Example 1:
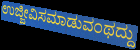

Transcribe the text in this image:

ಉಜ್ಜೀವಿಸಮಾಡುವಂಥದ್ದು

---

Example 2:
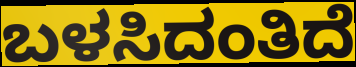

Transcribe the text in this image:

ಬಳಸಿದಂತಿದೆ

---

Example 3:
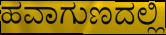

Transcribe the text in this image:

ಹವಾಗುಣದಲ್ಲಿ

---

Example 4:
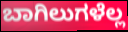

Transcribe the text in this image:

ಬಾಗಿಲುಗಳೆಲ್ಲ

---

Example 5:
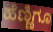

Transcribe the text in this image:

ಹೆಣ್ಣಿಗೂ